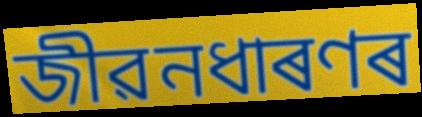
জীৱনধাৰণৰ